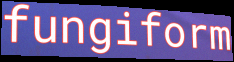
fungiform